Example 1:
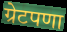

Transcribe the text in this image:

ग्रेटपणा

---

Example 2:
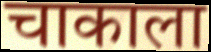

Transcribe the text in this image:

चाकाला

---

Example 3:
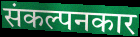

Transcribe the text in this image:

संकल्पनकार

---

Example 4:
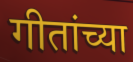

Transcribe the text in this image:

गीतांच्या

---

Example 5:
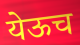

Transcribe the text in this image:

येऊच